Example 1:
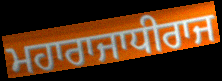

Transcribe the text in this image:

ਮਹਾਰਾਜਾਧੀਰਾਜ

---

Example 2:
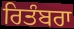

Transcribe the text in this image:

ਰਿਤੰਬਰਾ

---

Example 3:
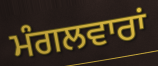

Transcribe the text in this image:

ਮੰਗਲਵਾਰਾਂ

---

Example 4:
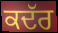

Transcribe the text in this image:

ਕਦੱਰ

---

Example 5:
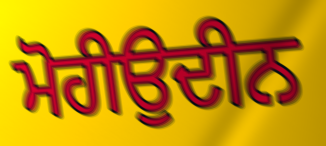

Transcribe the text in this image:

ਮੋਹੀਉਦੀਨ